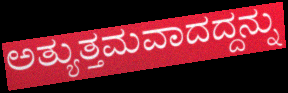
ಅತ್ಯುತ್ತಮವಾದದ್ದನ್ನು